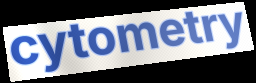
cytometry